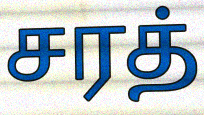
சரத்